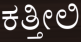
ಕತ್ತೀಲಿ